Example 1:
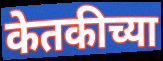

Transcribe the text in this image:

केतकीच्या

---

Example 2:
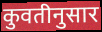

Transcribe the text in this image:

कुवतीनुसार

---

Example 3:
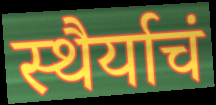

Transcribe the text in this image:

स्थैर्याचं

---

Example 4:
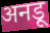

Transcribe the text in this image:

अनडू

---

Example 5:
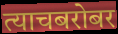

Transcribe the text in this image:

त्‍याचबरोबर